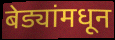
बेड्यांमधून